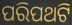
ପରିପଥଟି